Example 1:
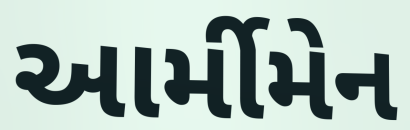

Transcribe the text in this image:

આર્મીમેન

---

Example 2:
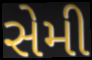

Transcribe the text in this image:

સેમી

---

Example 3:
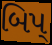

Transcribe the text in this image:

બિપ્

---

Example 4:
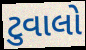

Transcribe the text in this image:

ટુવાલો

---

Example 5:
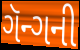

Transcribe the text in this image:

ગૅન્ગની